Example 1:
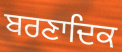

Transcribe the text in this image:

ਬਰਣਾਦਿਕ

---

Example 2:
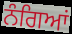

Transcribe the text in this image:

ਨੰਗਿਆਂ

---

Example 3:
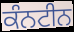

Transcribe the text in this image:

ਕੰਨਟੀਨ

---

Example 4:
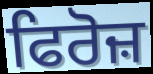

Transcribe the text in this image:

ਫਿਰੋਜ਼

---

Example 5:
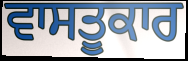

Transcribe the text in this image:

ਵਾਸਤੂਕਾਰ